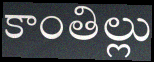
కాంతిల్లు